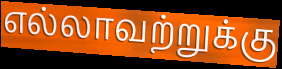
எல்லாவற்றுக்கு